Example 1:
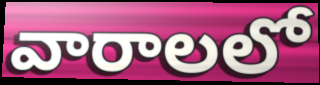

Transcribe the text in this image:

వారాలలో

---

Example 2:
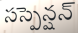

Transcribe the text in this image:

సస్పెన్షన్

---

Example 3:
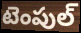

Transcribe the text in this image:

టెంపుల్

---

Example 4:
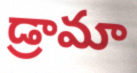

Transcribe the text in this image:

డ్రామా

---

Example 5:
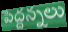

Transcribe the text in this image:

పెద్దన్నలు